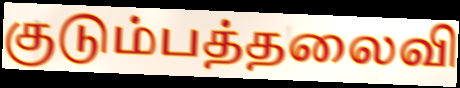
குடும்பத்தலைவி